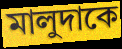
মালুদাকে